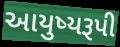
આયુષ્યરૂપી